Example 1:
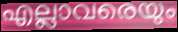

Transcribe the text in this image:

എല്ലാവരെയും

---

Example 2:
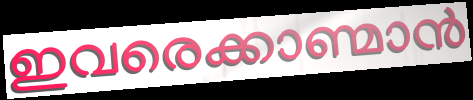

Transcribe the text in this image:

ഇവരെക്കാണ്മാൻ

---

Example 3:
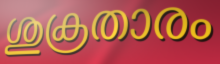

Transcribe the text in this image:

ശുക്രതാരം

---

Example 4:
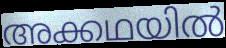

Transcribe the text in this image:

അക്കഥയിൽ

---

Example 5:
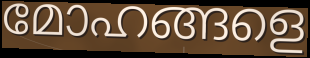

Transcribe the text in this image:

മോഹങ്ങളെ